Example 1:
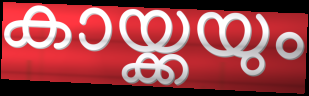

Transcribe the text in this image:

കായ്ക്കയും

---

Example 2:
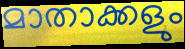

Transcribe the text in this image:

മാതാക്കളും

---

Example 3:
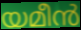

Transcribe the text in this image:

യമീൻ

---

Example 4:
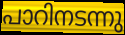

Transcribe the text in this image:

പാറിനടന്നു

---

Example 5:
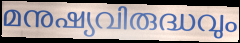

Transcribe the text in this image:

മനുഷ്യവിരുദ്ധവും